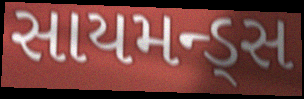
સાયમન્ડ્સ